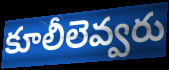
కూలీలెవ్వరు